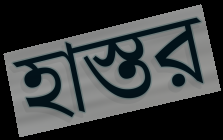
হাস্তর